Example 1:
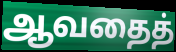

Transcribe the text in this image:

ஆவதைத்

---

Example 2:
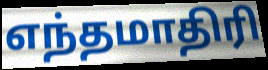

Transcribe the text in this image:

எந்தமாதிரி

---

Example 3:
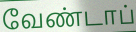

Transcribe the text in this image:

வேண்டாப்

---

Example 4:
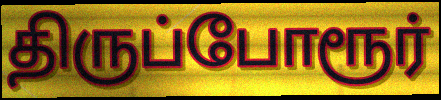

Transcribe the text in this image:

திருப்போரூர்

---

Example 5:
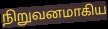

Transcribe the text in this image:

நிறுவனமாகிய